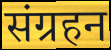
संग्रहन